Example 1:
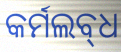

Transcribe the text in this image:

କର୍ମଲବ୍‌ଧ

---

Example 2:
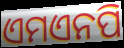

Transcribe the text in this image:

ଏମଏନପି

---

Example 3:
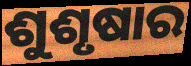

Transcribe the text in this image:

ଶୁଶୃଷାର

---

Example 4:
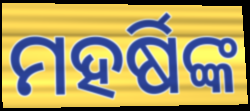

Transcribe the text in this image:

ମହର୍ଷିଙ୍କ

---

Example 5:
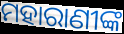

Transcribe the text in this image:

ମହାରାଣୀଙ୍କ